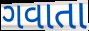
ગવાતા